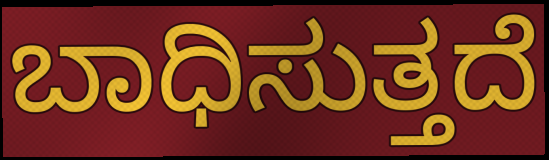
ಬಾಧಿಸುತ್ತದೆ